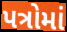
પત્રોમાં